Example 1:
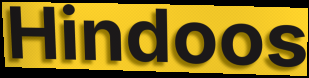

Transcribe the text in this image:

Hindoos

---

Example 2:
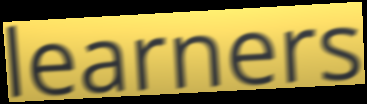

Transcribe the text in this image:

learners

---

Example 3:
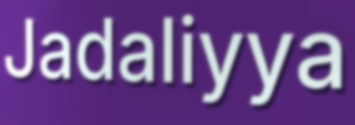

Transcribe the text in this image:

Jadaliyya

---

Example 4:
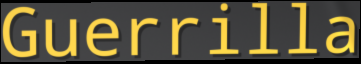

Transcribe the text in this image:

Guerrilla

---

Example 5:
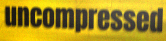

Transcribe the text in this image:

uncompressed